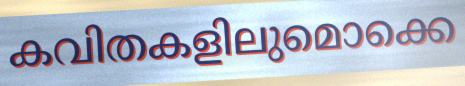
കവിതകളിലുമൊക്കെ